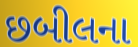
છબીલના